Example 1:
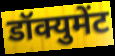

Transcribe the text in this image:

डॉक्युमेंट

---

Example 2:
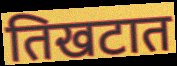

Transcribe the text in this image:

तिखटात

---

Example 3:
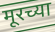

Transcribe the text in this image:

मूरच्या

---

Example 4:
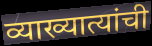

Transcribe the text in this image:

व्याख्यात्यांची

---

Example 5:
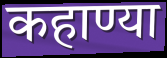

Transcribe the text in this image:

कहाण्या